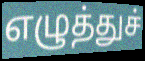
எழுத்துச்